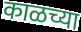
काळच्या